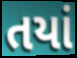
તયાં